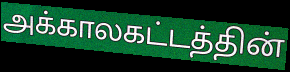
அக்காலகட்டத்தின்